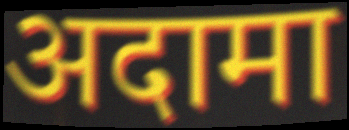
अदामा